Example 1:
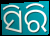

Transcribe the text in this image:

ସିରି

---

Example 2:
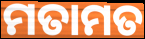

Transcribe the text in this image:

ମତାମତ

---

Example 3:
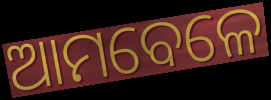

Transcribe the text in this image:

ଆମବେଳେ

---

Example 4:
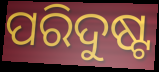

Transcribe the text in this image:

ପରିଦୁଷ୍ଟ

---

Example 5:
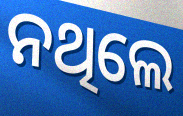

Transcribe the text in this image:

ନଥିଲେ